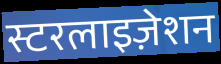
स्टरलाइज़ेशन